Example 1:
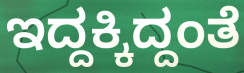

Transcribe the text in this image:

ಇದ್ದಕ್ಕಿದ್ದಂತೆ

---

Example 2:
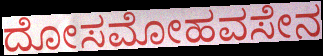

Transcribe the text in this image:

ದೋಸಮೋಹವಸೇನ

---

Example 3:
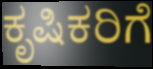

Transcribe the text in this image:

ಕೃಷಿಕರಿಗೆ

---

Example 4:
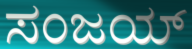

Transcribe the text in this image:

ಸಂಜಯ್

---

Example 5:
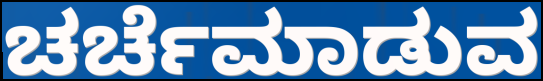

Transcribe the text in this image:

ಚರ್ಚೆಮಾಡುವ